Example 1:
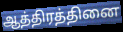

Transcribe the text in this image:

ஆத்திரத்தினை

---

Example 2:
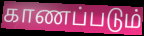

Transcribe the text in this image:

காணப்படும்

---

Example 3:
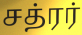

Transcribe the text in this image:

சத்ரர்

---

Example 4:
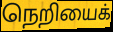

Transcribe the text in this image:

நெறியைக்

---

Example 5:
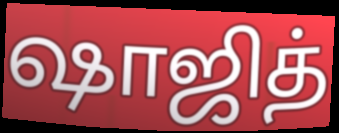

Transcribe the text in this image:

ஷாஜித்